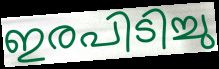
ഇരപിടിച്ചു